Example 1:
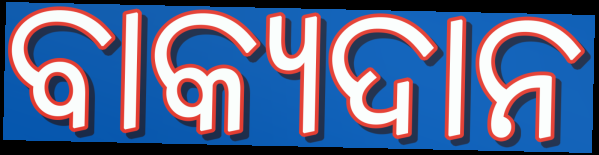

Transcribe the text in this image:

ବାକ୍ୟଦାନ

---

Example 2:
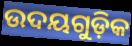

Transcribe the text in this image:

ଉଦୟଗୁଡ଼ିକ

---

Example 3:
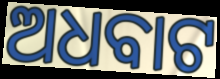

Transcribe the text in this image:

ଅଧବାଟ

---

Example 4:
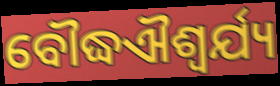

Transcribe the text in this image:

ବୌଦ୍ଧଐଶ୍ୱର୍ଯ୍ୟ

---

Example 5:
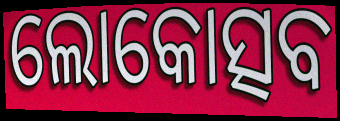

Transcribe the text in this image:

ଲୋକୋତ୍ସବ